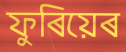
ফুৰিয়েৰ